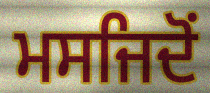
ਮਸਜਿਦੋਂ